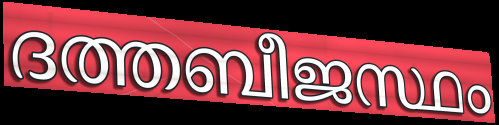
ദത്തബീജസ്ഥം